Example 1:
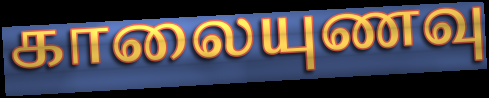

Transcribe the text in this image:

காலையுணவு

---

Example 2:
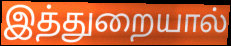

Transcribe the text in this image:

இத்துறையால்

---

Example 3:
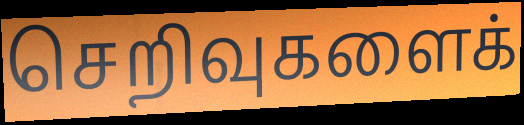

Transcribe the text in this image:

செறிவுகளைக்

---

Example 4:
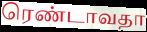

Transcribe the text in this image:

ரெண்டாவதா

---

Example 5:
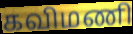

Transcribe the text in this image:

கவிமணி